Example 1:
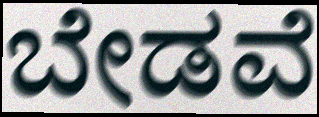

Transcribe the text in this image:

ಬೇಡವೆ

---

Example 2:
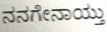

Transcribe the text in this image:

ನನಗೇನಾಯ್ತು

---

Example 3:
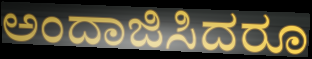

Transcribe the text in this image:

ಅಂದಾಜಿಸಿದರೂ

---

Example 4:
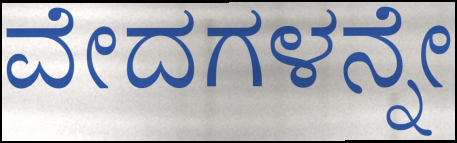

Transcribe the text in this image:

ವೇದಗಳನ್ನೇ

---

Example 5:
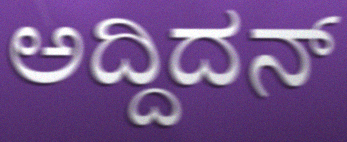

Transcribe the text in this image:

ಅದ್ದಿದನ್